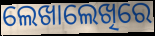
ଲେଖାଲେଖିରେ